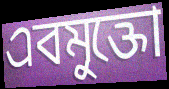
এবমুক্তো